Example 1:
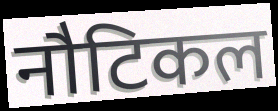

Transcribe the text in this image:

नौटिकल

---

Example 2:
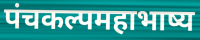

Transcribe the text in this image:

पंचकल्पमहाभाष्य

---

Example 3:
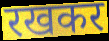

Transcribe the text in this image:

रखकर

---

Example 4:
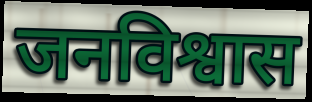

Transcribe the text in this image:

जनविश्वास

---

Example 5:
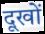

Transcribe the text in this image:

दूखों